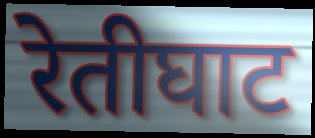
रेतीघाट